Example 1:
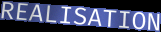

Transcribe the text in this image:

REALISATION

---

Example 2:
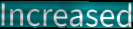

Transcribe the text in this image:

Increased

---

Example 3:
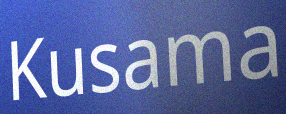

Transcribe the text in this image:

Kusama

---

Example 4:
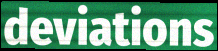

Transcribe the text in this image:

deviations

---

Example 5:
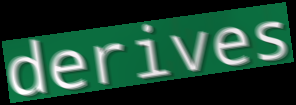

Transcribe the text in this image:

derives